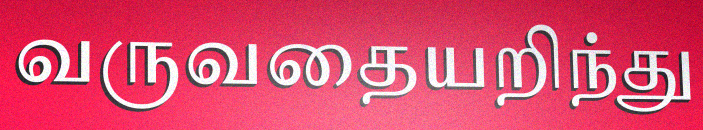
வருவதையறிந்து